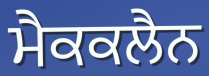
ਮੈਕਕਲੈਨ